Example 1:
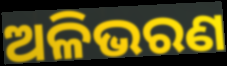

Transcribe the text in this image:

ଅଳିଭରଣ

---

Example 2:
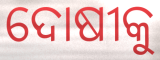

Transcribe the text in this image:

ଦୋଷୀକୁ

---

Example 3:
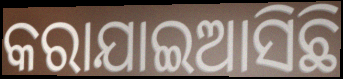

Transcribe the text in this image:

କରାଯାଇଆସିଛି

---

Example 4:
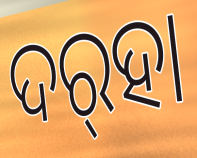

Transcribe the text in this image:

ଦର୍‌ହା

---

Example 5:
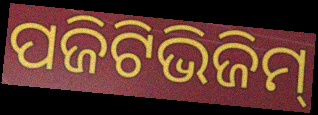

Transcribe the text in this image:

ପଜିଟିଭିଜିମ୍